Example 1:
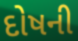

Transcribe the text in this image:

દોષની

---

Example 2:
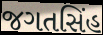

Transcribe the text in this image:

જગતસિંહ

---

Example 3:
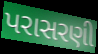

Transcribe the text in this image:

પરાસરણી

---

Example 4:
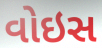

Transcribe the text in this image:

વોઇસ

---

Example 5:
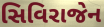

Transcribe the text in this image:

સિવિરાજેન